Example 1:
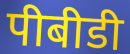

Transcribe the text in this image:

पीबीडी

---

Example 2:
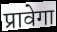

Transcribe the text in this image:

प्रावेगा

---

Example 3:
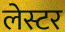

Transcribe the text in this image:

लेस्टर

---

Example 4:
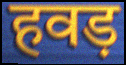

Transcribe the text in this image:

हवड़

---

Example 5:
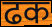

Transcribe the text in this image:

ढक